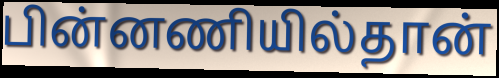
பின்னணியில்தான்